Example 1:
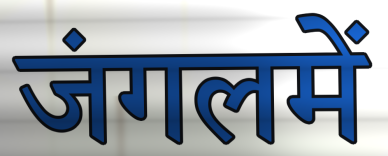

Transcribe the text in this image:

जंगलमें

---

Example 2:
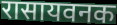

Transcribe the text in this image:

रासायवनक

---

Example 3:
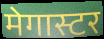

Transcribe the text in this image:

मेगास्टर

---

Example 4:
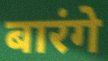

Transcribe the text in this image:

बारंगे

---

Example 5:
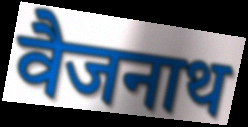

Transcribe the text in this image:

वैजनाथ